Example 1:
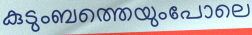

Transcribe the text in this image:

കുടുംബത്തെയുംപോലെ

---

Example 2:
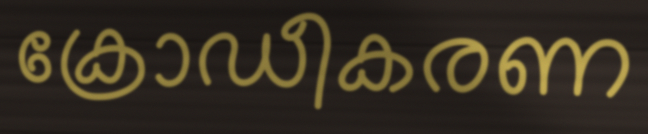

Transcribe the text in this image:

ക്രോഡീകരണ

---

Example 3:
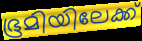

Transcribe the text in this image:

ഭൂമിയിലേക്ക്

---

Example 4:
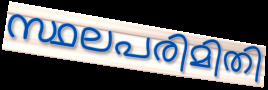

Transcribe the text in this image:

സ്ഥലപരിമിതി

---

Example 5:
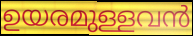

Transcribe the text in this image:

ഉയരമുള്ളവൻ